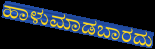
ಹಾಳುಮಾಡಬಾರದು